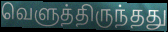
வெளுத்திருந்தது